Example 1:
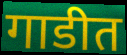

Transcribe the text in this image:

गाडीत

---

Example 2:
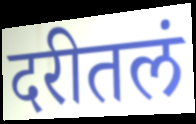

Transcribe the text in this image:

दरीतलं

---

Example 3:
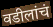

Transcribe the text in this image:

वडीलांचं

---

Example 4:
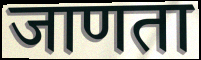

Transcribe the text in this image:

जाणता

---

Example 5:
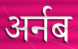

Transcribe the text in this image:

अर्नब